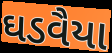
ઘડવૈયા